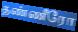
தண்ணீரோ